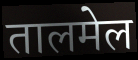
तालमेल